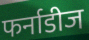
फर्नाडीज